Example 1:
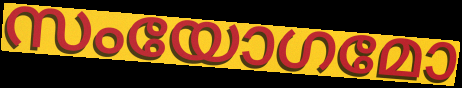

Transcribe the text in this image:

സംയോഗമോ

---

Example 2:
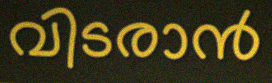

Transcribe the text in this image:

വിടരാൻ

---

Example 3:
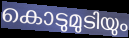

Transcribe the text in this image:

കൊടുമുടിയും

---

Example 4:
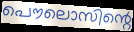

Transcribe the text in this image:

പൌലൊസിന്റെ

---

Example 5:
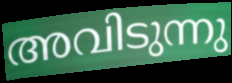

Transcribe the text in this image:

അവിടുന്നു